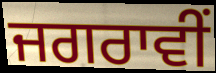
ਜਗਰਾਵੀਂ